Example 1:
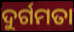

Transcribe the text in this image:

ଦୁର୍ଗମତା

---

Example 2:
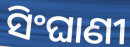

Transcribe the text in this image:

ସିଂଘାଣୀ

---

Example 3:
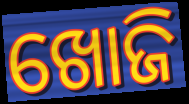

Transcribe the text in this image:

ଖୋଜି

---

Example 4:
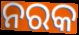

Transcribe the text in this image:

ନରକ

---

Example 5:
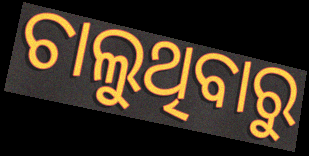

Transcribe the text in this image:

ଚାଲୁଥିବାରୁ